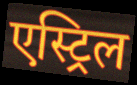
एस्ट्रिल